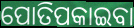
ପୋତିପକାଇବା